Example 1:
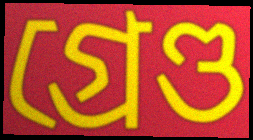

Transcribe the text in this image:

গ্ৰেণ্ড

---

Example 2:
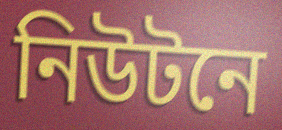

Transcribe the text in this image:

নিউটনে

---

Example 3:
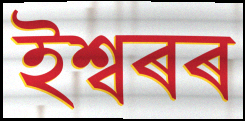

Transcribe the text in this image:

ইশ্বৰৰ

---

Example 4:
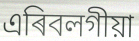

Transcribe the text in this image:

এৰিবলগীয়া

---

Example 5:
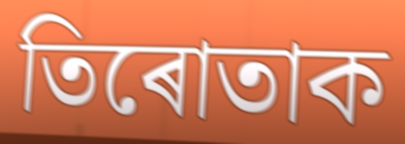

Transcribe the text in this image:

তিৰোতাক